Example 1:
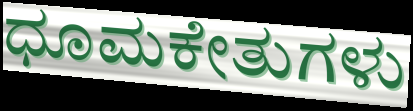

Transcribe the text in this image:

ಧೂಮಕೇತುಗಳು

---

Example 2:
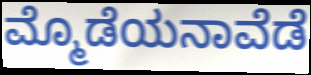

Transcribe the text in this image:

ಮ್ಮೊಡೆಯನಾವೆಡೆ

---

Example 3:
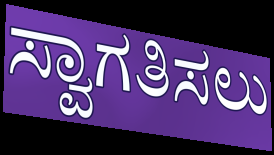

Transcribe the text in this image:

ಸ್ವಾಗತಿಸಲು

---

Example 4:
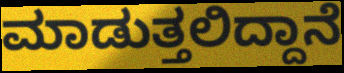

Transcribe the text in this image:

ಮಾಡುತ್ತಲಿದ್ದಾನೆ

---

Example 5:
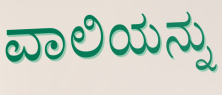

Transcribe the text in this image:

ವಾಲಿಯನ್ನು